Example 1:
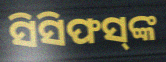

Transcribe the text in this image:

ସିସିଫସ୍‌ଙ୍କ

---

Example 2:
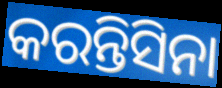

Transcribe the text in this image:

କରନ୍ତିସିନା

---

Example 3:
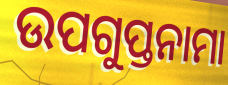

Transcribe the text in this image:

ଉପଗୁପ୍ତନାମା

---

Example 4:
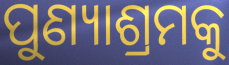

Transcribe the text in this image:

ପୁଣ୍ୟାଶ୍ରମକୁ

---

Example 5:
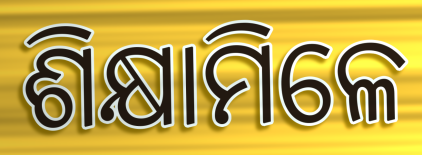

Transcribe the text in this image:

ଶିକ୍ଷାମିଳେ